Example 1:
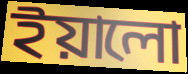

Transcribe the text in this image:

ইয়ালো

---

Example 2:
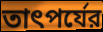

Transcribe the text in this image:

তাৎপর্যের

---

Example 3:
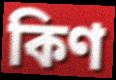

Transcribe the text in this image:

কিণ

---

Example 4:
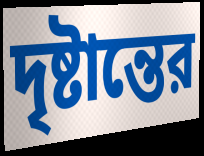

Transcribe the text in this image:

দৃষ্টান্তের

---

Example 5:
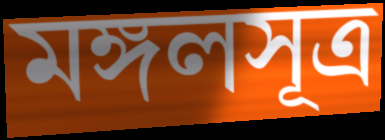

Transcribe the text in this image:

মঙ্গলসূত্র